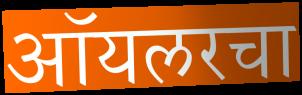
ऑयलरचा